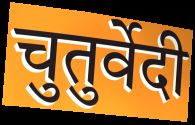
चुतुर्वेदी